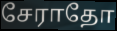
சேராதோ